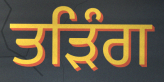
ਤੜਿੰਗ